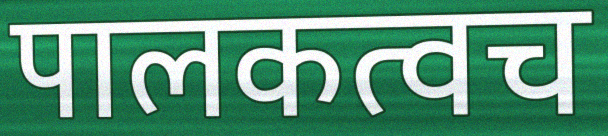
पालकत्वच